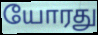
யோரது